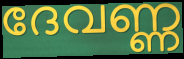
ദേവണ്ണ